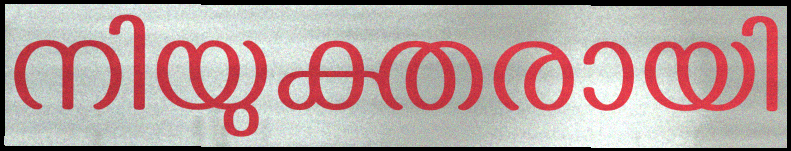
നിയുക്തരായി